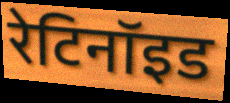
रेटिनॉइड